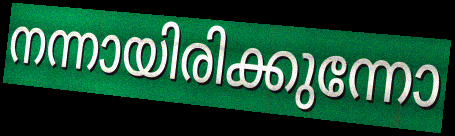
നന്നായിരിക്കുന്നോ